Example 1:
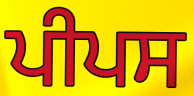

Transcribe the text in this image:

ਪੀਪਸ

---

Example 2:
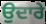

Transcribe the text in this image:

ਉਦਾਰੇ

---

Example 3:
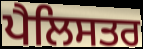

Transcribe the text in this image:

ਪੈਲਿਸਤਰ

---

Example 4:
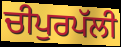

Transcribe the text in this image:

ਚੀਪੁਰਪੱਲੀ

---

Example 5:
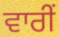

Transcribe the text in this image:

ਵਾਰੀਂ